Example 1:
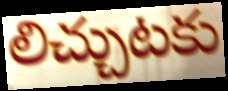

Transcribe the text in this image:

లిచ్చుటకు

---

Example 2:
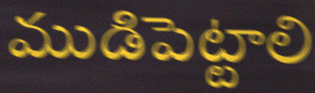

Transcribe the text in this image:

ముడిపెట్టాలి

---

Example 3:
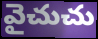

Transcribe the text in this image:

వైచుచు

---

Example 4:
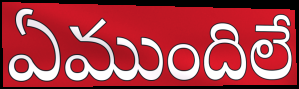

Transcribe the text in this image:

ఏముందిలే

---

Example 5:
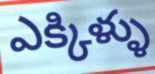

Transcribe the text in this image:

ఎక్కిళ్ళు